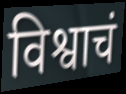
विश्वाचं